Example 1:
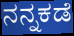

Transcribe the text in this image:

ನನ್ನಕಡೆ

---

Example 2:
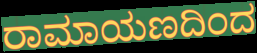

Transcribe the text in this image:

ರಾಮಾಯಣದಿಂದ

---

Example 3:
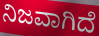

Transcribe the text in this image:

ನಿಜವಾಗಿದೆ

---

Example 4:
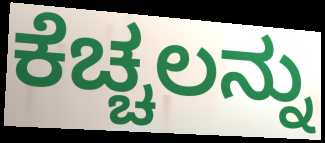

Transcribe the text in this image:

ಕೆಚ್ಚಲನ್ನು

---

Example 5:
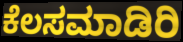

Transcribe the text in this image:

ಕೆಲಸಮಾಡಿರಿ